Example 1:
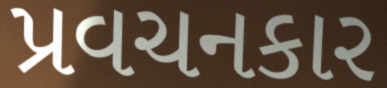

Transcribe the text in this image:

પ્રવચનકાર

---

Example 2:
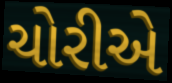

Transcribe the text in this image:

ચોરીએ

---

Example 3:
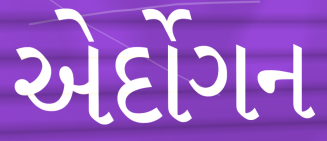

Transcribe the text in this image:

એર્દોગન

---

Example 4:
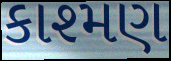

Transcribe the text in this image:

કાશ્મણ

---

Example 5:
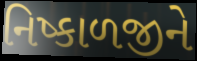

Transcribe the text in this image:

નિષ્કાળજીને